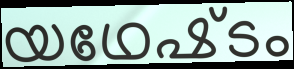
യഥേഷ്‌ടം